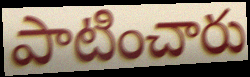
పాటించారు